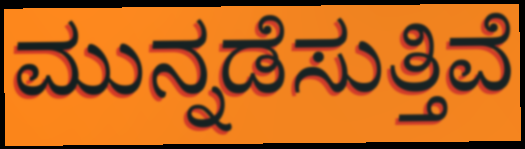
ಮುನ್ನಡೆಸುತ್ತಿವೆ